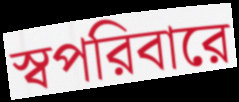
স্বপরিবারে